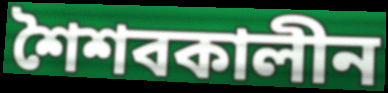
শৈশবকালীন